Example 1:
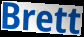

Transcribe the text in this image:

Brett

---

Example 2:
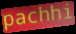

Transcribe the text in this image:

pachhi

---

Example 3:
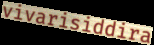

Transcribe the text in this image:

vivarisiddira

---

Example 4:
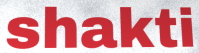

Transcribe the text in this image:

shakti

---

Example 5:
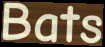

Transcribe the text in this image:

Bats